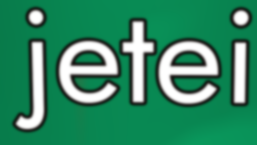
jetei